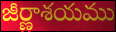
జీర్ణాశయము